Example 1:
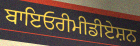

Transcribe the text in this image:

ਬਾਇਓਰੀਮੀਡੀਏਸ਼ਨ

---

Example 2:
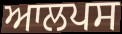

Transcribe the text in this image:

ਆਲਪਸ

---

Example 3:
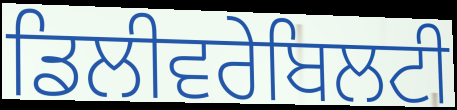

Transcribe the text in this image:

ਡਿਲੀਵਰੇਬਿਲਟੀ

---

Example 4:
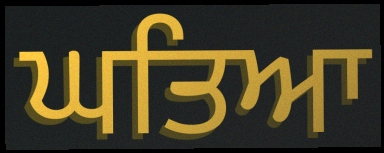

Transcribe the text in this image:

ਘਤਿਆ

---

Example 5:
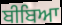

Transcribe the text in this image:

ਬੀਬਿਆ